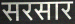
सरसार